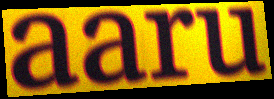
aaru